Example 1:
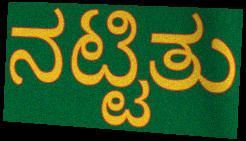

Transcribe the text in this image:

ನಟ್ಟಿತು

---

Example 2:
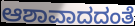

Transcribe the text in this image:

ಆಶಾವಾದದಂತೆ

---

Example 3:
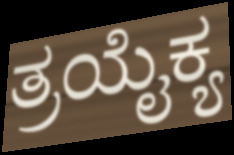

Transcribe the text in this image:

ತ್ರಯೈಕ್ಯ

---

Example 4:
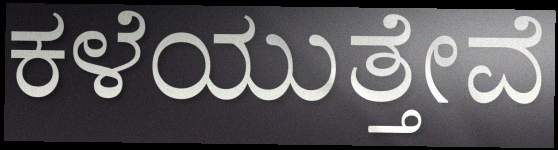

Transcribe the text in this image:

ಕಳೆಯುತ್ತೇವೆ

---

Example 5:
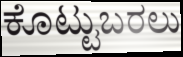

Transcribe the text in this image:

ಕೊಟ್ಟುಬರಲು